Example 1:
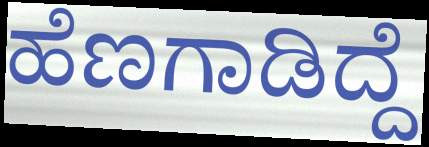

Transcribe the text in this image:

ಹೆಣಗಾಡಿದ್ದೆ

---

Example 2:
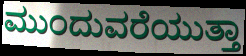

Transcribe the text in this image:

ಮುಂದುವರೆಯುತ್ತಾ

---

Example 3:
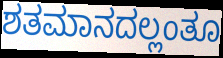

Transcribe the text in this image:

ಶತಮಾನದಲ್ಲಂತೂ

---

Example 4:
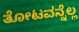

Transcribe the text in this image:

ತೋಟವನ್ನೆಲ್ಲ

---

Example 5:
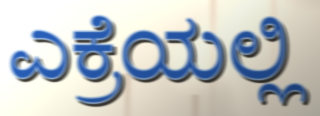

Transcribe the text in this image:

ಎಕ್ರೆಯಲ್ಲಿ